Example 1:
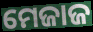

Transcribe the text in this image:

ମେଜାଜ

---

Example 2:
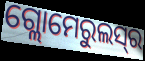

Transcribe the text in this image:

ଗ୍ଲୋମେରୁଲସ୍‌ର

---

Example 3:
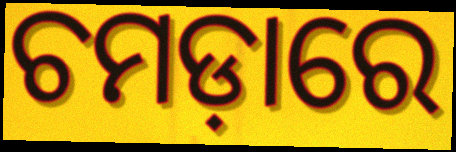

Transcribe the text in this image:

ଚମଡ଼ାରେ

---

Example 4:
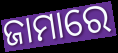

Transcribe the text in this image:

ଜାମାରେ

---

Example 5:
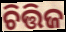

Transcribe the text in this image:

ଚିତ୍ତିଜ